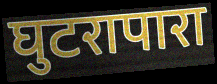
घुटरापारा